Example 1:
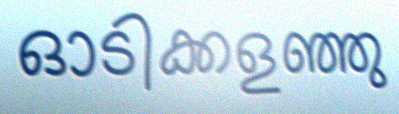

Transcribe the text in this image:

ഓടിക്കളഞ്ഞു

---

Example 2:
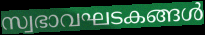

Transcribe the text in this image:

സ്വഭാവഘടകങ്ങൾ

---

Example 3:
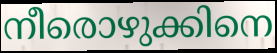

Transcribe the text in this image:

നീരൊഴുക്കിനെ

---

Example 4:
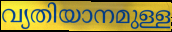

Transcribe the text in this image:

വ്യതിയാനമുള്ള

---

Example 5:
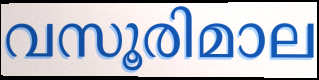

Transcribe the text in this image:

വസൂരിമാല